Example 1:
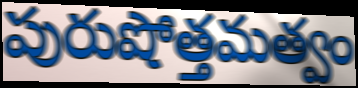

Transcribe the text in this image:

పురుషోత్తమత్వం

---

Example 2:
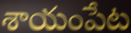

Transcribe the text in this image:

శాయంపేట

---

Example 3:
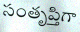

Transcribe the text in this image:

సంతృప్తిగా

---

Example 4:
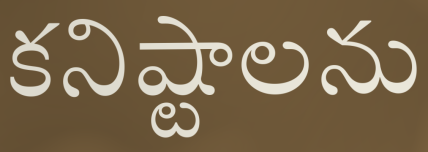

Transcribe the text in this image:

కనిష్టాలను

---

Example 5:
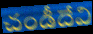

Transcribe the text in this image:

చండీదేవి